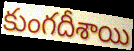
కుంగదీశాయి